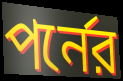
পর্নের